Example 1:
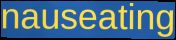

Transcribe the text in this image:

nauseating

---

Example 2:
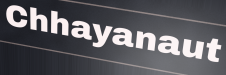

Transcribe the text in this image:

Chhayanaut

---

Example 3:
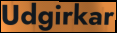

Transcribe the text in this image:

Udgirkar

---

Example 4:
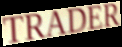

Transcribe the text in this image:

TRADER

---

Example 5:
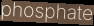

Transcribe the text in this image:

phosphate